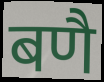
बणै